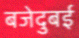
बजेदुबई